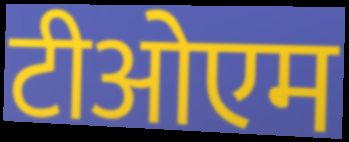
टीओएम